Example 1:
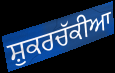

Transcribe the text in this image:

ਸ਼ੁਕਰਚੱਕੀਆ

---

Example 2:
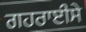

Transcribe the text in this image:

ਗਹਰਾਈਸੇ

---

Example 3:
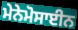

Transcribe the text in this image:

ਮੇਨੇਮੋਸਾਈਨ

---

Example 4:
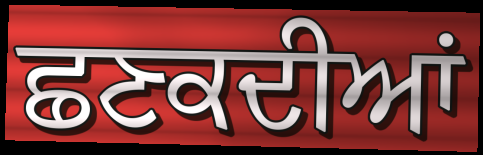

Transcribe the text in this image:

ਛਣਕਦੀਆਂ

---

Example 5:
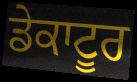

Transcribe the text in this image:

ਡੇਕਾਟੂਰ